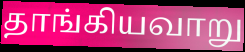
தாங்கியவாறு